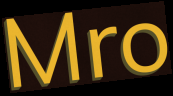
Mro